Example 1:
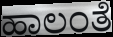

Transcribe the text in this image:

ಹಾಲಂತೆ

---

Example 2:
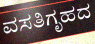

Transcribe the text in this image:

ವಸತಿಗೃಹದ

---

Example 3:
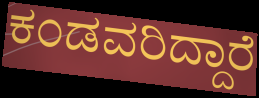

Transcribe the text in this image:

ಕಂಡವರಿದ್ದಾರೆ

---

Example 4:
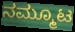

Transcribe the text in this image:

ನಮ್ಮೂಟ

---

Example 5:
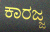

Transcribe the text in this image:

ಕಾರಜ್ಜ